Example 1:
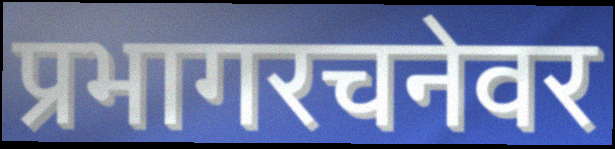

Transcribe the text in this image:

प्रभागरचनेवर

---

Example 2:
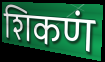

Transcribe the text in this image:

शिकणं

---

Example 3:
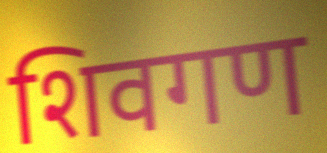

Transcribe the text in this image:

शिवगण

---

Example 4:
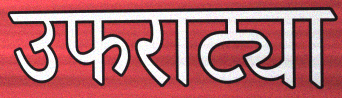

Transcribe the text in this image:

उफराट्या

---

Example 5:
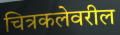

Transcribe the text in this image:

चित्रकलेवरील